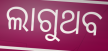
ଲାଗୁଥବ